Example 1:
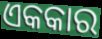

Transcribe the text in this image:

ଏକକାର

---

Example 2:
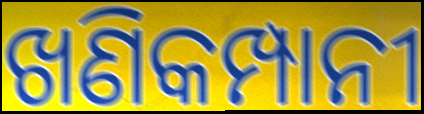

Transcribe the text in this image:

ଖଣିକମ୍ପାନୀ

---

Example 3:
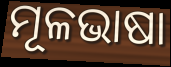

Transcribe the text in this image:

ମୂଳଭାଷା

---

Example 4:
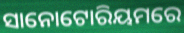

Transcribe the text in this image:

ସାନୋଟୋରିୟମରେ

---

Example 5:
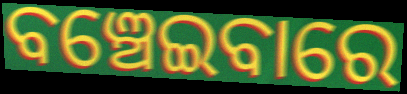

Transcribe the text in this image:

ବଞ୍ଚେଇବାରେ